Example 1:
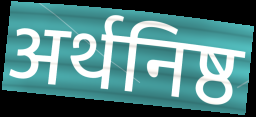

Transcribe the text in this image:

अर्थनिष्ठ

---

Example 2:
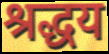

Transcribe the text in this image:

श्रद्धय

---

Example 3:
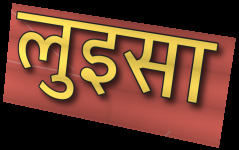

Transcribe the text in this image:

लुइसा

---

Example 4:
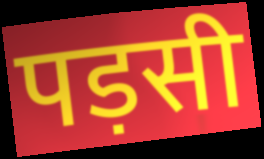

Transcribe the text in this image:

पड़सी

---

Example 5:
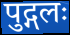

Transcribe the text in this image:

पुद्गलः